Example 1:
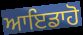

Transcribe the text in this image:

ਆਇਡਾਹੋ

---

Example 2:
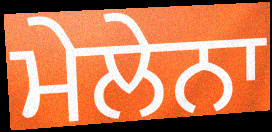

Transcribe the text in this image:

ਮੇਲੇਨਾ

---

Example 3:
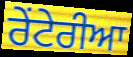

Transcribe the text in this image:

ਰੇਂਟੇਰੀਆ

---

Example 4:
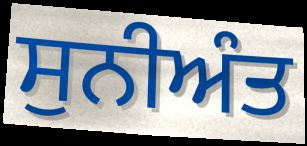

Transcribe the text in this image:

ਸੁਨੀਅੰਤ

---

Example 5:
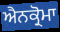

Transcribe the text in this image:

ਐਨਕ੍ਰੋਮਾ